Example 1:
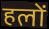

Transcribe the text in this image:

हलों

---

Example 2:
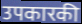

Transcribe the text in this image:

उपकारकी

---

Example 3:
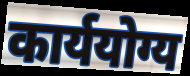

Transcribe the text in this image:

कार्ययोग्य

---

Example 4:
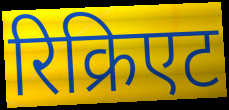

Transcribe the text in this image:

रिक्रिएट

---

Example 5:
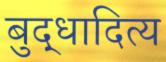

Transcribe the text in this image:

बुद्धादित्य